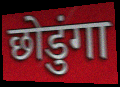
छोडुंगा